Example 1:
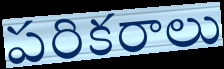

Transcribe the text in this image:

పరికరాలు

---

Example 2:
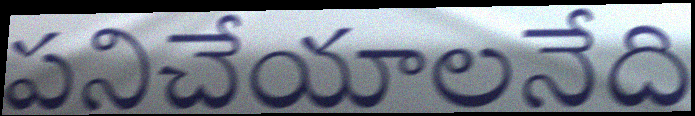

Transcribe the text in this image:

పనిచేయాలనేది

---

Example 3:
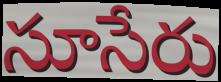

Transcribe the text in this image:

సూసేరు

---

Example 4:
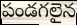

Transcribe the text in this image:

పండగలైన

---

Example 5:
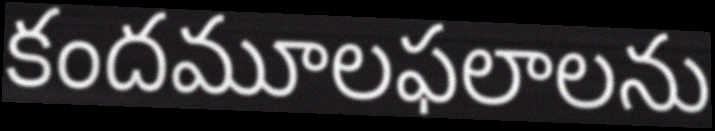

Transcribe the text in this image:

కందమూలఫలాలను